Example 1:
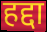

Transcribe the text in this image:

हद्दा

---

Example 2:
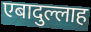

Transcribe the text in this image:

एबादुल्लाह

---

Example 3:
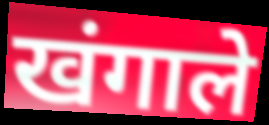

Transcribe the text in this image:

खंगाले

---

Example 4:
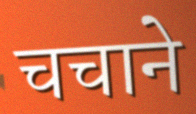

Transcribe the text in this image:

चचाने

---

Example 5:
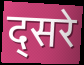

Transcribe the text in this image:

द्सरे